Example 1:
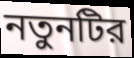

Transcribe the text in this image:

নতুনটির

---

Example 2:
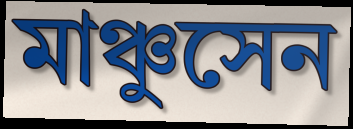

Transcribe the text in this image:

মাঞ্চুসেন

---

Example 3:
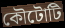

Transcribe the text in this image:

কৌটোটি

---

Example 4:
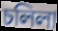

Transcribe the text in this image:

চলিলা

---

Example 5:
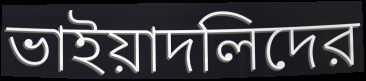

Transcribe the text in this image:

ভাইয়াদলিদের